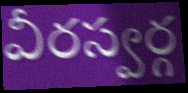
వీరస్వర్గ